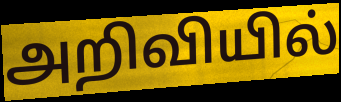
அறிவியில்